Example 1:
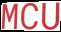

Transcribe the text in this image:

MCU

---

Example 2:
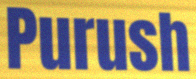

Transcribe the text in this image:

Purush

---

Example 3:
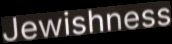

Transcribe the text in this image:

Jewishness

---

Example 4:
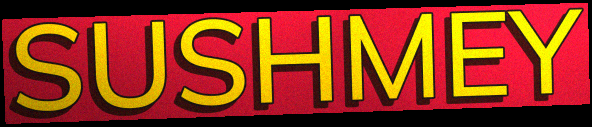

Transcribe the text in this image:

SUSHMEY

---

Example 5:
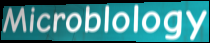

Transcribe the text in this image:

Microblology